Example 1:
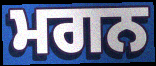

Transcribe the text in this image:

ਮਗਨ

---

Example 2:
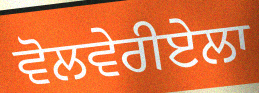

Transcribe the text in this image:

ਵੋਲਵੇਰੀਏਲਾ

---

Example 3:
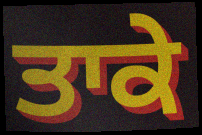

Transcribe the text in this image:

ਤਾਕੇ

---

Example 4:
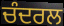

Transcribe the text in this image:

ਚੰਦਰਲ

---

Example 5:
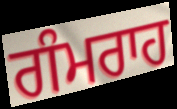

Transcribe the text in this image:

ਗੰਮਰਾਹ